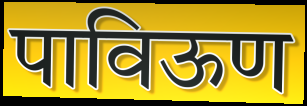
पाविऊण